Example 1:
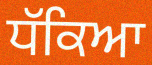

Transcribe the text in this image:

ਧੱਕਿਆ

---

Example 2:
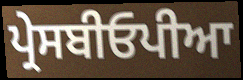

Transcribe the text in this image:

ਪ੍ਰੇਸਬੀਓਪੀਆ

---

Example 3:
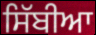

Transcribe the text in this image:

ਸਿੱਬੀਆ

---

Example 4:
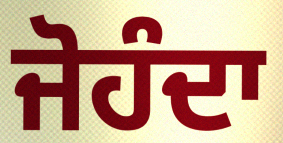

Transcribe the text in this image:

ਜੋਹੰਦਾ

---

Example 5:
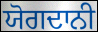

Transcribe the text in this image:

ਯੋਗਦਾਨੀ